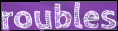
roubles